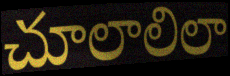
చూలాలిలా